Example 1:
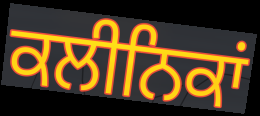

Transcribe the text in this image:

ਕਲੀਨਿਕਾਂ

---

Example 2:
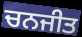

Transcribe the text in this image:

ਚਨਜੀਤ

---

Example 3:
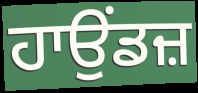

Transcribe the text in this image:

ਹਾਉਂਡਜ਼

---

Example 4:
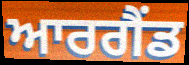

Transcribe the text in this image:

ਆਰਗੈਂਡ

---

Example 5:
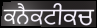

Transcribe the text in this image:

ਕਨੈਕਟੀਕਚ